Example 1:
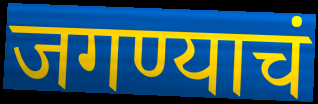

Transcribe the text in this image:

जगण्याचं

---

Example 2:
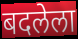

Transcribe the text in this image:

बदलेला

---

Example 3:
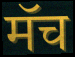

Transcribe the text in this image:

मॅच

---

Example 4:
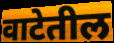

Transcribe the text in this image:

वाटेतील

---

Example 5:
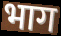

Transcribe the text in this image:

भाग